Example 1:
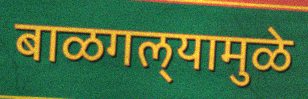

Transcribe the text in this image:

बाळगल्यामुळे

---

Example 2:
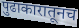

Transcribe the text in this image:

पुढाकारातूनच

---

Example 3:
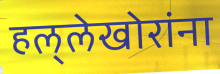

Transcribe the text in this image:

हल्लेखोरांना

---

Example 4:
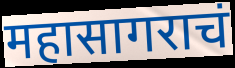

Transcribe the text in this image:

महासागराचं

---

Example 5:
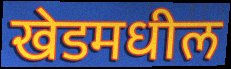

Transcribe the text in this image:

खेडमधील